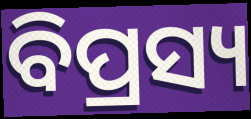
ବିପ୍ରସ୍ୟ